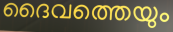
ദൈവത്തെയും